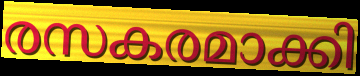
രസകരമാക്കി